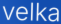
velka